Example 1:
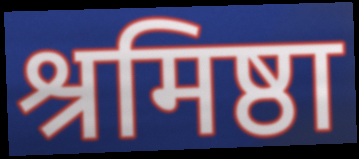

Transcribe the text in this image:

श्रमिष्ठा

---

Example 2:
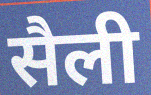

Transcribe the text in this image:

सैली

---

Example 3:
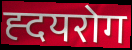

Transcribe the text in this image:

ह्दयरोग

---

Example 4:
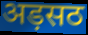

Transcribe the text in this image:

अड़सठ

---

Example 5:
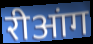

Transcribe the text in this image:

रीआंग